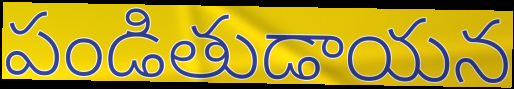
పండితుడాయన